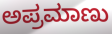
ಅಪ್ರಮಾಣು